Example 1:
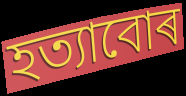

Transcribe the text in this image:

হত্যাবোৰ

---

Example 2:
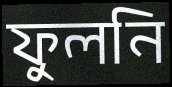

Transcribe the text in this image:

ফুলনি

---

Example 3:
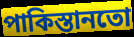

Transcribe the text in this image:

পাকিস্তানতো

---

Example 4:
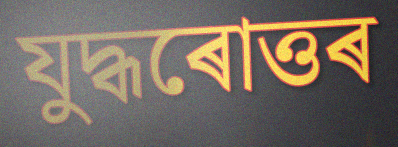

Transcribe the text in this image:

যুদ্ধৰোত্তৰ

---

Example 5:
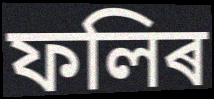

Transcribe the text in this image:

ফলিৰ